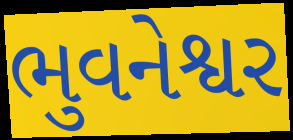
ભુવનેશ્વર